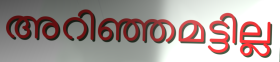
അറിഞ്ഞമട്ടില്ല